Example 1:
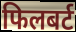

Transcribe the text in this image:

फिलबर्ट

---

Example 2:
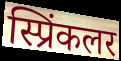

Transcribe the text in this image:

स्प्रिंकलर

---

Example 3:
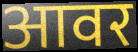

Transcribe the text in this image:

आवर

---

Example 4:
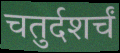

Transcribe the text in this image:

चतुर्दशर्चं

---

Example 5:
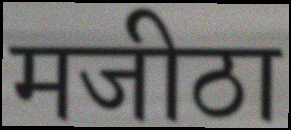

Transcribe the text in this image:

मजीठा